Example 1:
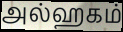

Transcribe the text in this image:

அல்ஹகம்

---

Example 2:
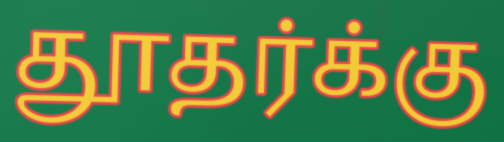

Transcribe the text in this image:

தூதர்க்கு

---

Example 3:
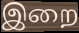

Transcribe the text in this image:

இறை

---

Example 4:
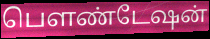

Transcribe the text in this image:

பௌண்டேஷன்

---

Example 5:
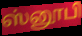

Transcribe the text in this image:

ஸ்னூபி